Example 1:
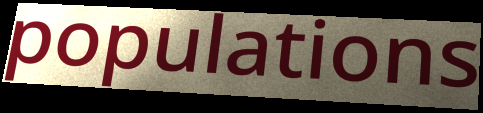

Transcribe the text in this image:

populations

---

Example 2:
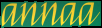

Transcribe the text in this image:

annaa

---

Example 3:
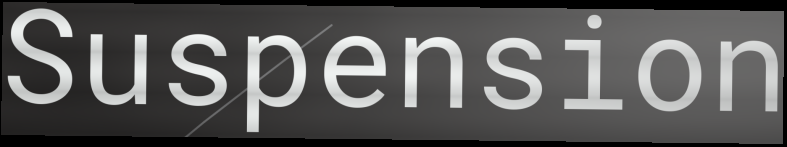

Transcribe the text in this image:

Suspension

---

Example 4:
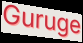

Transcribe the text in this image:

Guruge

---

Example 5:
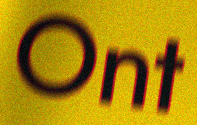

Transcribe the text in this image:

Ont